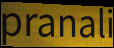
pranali